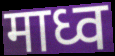
माध्व